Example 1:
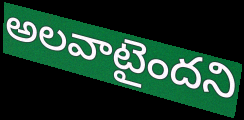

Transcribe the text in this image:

అలవాటైందని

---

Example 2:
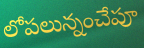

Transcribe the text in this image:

లోపలున్నంచేపూ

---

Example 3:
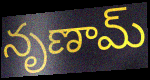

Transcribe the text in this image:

నృణామ్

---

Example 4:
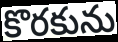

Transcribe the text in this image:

కొరకును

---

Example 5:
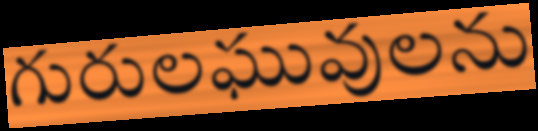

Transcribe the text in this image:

గురులఘువులను